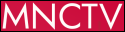
MNCTV